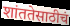
शांततेसाठीचं